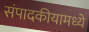
संपादकीयामध्ये